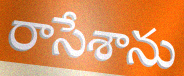
రాసేశాను